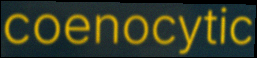
coenocytic